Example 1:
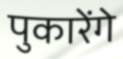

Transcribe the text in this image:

पुकारेंगे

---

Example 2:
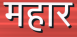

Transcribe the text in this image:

महार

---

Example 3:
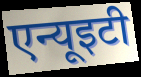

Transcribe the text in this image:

एन्यूइटी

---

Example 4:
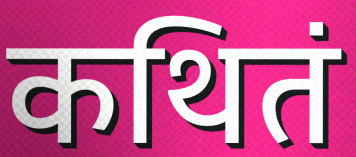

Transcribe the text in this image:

कथितं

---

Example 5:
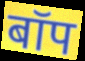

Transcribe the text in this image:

बॉप